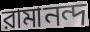
রামানন্দ